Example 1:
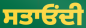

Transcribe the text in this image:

ਸਤਾਓਂਦੀ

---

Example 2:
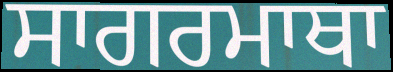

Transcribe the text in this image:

ਸਾਗਰਮਾਥਾ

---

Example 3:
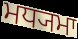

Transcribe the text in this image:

ਮਧ੍ਯਮਾ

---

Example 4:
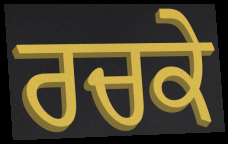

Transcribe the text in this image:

ਰਚਕੇ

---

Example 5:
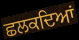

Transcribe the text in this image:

ਛਲਕਦਿਆਂ